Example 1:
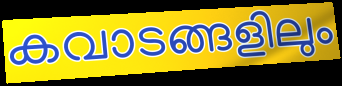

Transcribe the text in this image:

കവാടങ്ങളിലും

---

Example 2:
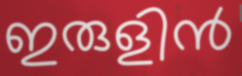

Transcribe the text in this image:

ഇരുളിൻ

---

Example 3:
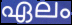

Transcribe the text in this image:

ഏലം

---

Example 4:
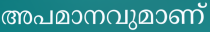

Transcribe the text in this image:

അപമാനവുമാണ്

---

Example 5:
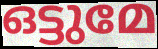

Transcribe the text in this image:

ഒട്ടുമേ